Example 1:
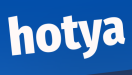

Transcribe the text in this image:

hotya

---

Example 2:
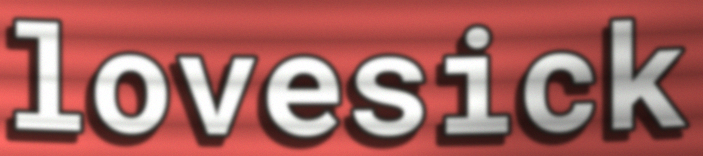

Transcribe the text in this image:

lovesick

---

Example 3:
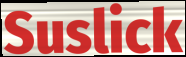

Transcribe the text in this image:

Suslick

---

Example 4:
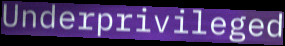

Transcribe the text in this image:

Underprivileged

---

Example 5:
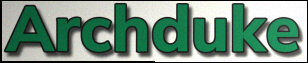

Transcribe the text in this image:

Archduke